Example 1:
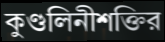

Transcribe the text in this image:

কুণ্ডলিনীশক্তির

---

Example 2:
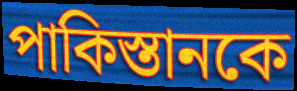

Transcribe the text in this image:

পাকিস্তানকে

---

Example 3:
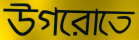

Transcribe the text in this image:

উগরোতে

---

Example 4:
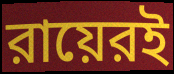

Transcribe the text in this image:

রায়েরই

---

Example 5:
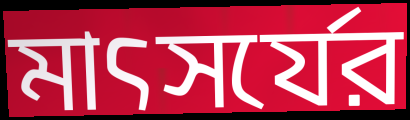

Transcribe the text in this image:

মাৎসর্যের